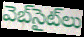
వెబ్‌సైట్‌లు